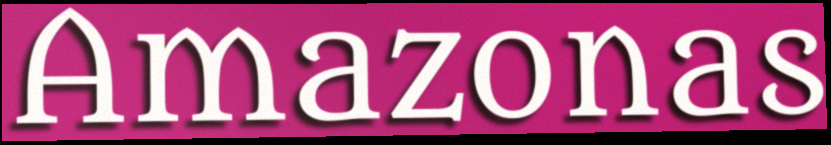
Amazonas